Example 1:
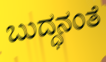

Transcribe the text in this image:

ಬುದ್ಧನಂತೆ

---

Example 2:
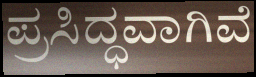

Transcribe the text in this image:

ಪ್ರಸಿದ್ಧವಾಗಿವೆ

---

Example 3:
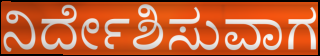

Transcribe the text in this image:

ನಿರ್ದೇಶಿಸುವಾಗ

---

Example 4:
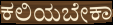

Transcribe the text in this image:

ಕಲಿಯಬೇಕಾ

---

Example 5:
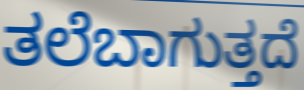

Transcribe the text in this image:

ತಲೆಬಾಗುತ್ತದೆ